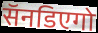
सॅनडिएगो